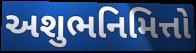
અશુભનિમિત્તો